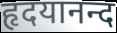
हृदयानन्द